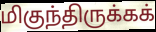
மிகுந்திருக்கக்